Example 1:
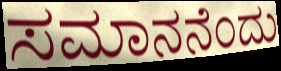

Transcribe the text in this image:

ಸಮಾನನೆಂದು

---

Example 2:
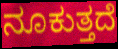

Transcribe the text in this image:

ನೂಕುತ್ತದೆ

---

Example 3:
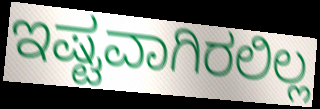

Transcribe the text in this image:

ಇಷ್ಟವಾಗಿರಲಿಲ್ಲ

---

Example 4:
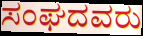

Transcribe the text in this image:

ಸಂಘದವರು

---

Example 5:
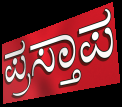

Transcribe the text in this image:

ಪ್ರಸ್ತಾಪ